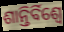
ଶାନ୍ତିର୍ବିଶ୍ୱେ